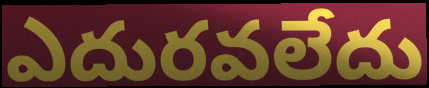
ఎదురవలేదు